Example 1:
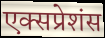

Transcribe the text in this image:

एक्सप्रेशंस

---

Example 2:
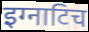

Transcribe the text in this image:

इग्नाटिच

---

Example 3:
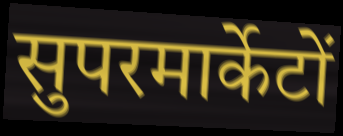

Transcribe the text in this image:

सुपरमार्केटों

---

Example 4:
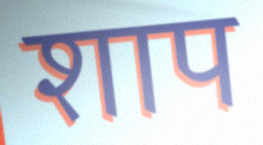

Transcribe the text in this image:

शाप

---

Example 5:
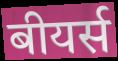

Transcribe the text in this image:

बीयर्स